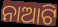
ନାଆଟି